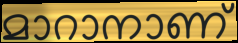
മാറാനാണ്